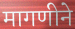
मागणीने